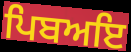
ਪਿਬਅਇ